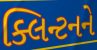
ક્લિન્ટનને